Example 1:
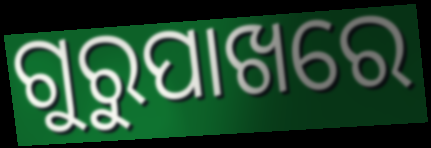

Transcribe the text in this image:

ଗୁରୁପାଖରେ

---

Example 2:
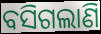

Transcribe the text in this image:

ବସିଗଲାଣି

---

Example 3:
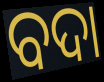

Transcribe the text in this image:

ବଦା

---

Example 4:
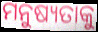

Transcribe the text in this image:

ମନୁଷ୍ୟତାକୁ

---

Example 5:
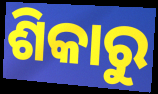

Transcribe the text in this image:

ଶିକାରୁ